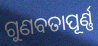
ଗୁଣବତାପୂର୍ଣ୍ଣ